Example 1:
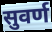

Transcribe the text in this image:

सुवर्ण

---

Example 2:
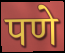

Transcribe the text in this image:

पणे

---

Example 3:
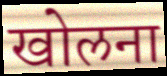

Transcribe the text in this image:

खोलना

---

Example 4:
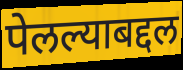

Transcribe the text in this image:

पेलल्याबद्दल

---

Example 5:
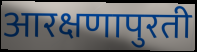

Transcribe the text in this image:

आरक्षणापुरती